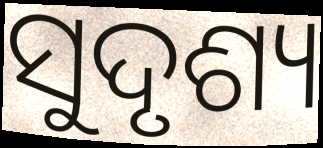
ସୁଦୃଶ୍ୟ